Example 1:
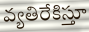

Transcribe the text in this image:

వ్యతిరేకిస్తూ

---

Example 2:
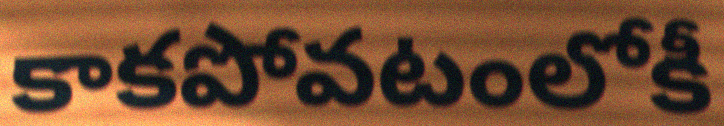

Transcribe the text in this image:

కాకపోవటంలోకీ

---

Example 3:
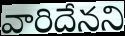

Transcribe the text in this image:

వారిదేనని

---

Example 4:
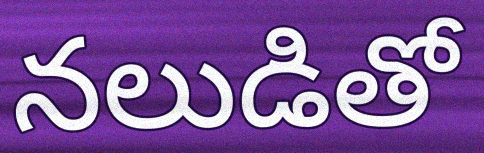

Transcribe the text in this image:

నలుడితో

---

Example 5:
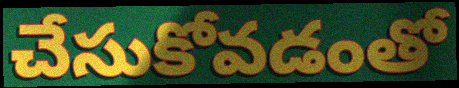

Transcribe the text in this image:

చేసుకోవడంతో